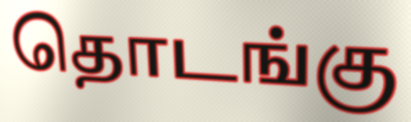
தொடங்கு